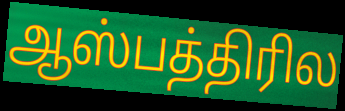
ஆஸ்பத்திரில